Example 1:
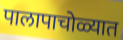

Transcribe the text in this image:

पालापाचोळ्यात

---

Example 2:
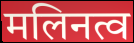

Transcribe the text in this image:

मलिनत्व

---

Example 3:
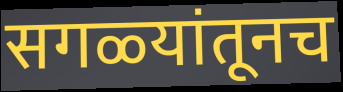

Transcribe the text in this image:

सगळ्यांतूनच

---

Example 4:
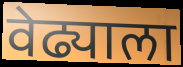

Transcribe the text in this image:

वेढ्याला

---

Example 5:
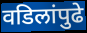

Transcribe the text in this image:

वडिलांपुढे